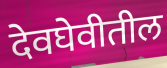
देवघेवीतील